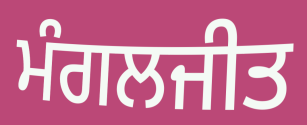
ਮੰਗਲਜੀਤ